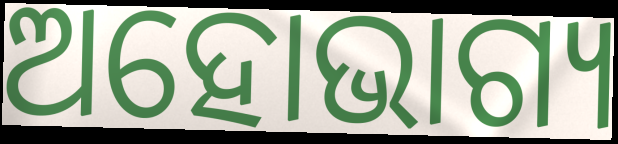
ଅହୋଭାଗ୍ୟ